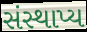
સંસ્થાપ્ય